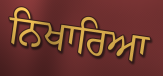
ਨਿਖਾਰਿਆ